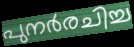
പുനർരചിച്ച